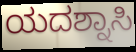
ಯದಶ್ನಾಸಿ